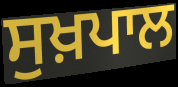
ਸੁਖ਼ਪਾਲ